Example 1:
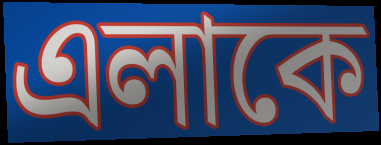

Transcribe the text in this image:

এলাকে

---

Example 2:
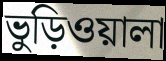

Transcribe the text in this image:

ভুড়িওয়ালা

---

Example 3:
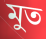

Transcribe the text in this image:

মুত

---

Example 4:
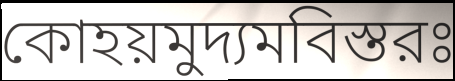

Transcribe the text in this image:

কোহয়মুদ্যমবিস্তরঃ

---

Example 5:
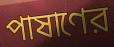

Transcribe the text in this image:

পাষাণের